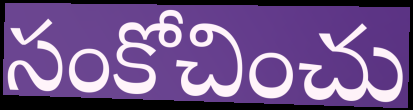
సంకోచించు